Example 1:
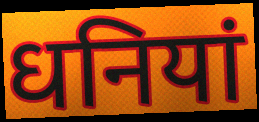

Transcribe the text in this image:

धनियां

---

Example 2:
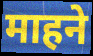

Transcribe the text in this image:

माहने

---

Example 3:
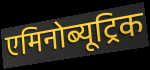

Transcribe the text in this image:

एमिनोब्यूट्रिक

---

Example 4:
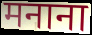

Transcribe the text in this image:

मनाना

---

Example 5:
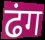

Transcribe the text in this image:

ढंग